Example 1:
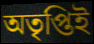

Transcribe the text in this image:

অতৃপ্তিই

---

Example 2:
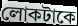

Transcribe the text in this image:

লোকটাকে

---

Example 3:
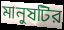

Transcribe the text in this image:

মানুষটির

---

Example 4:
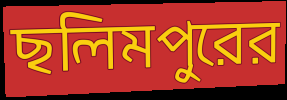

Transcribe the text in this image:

ছলিমপুরের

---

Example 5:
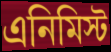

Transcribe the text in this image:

এনিমিস্ট